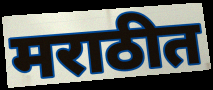
मराठीत